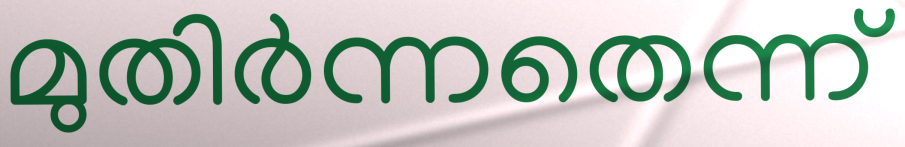
മുതിർന്നതെന്ന്